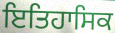
ਇਤਿਹਾਸਿਕ